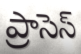
ప్రాసెస్